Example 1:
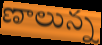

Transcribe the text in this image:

ణాలున్న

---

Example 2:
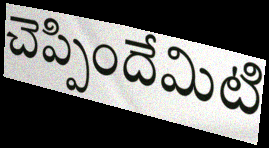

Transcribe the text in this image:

చెప్పిందేమిటి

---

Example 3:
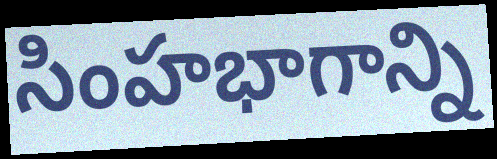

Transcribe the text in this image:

సింహభాగాన్ని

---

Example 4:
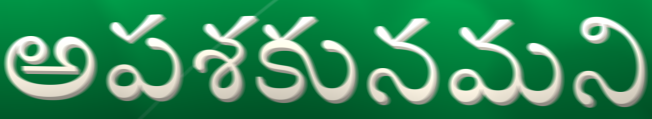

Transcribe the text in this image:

అపశకునమని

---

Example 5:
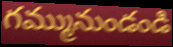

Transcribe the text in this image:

గమ్మునుండండి